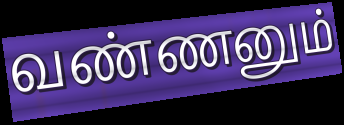
வண்ணனும்